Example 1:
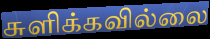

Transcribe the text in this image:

சுளிக்கவில்லை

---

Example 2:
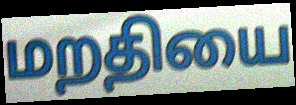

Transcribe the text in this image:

மறதியை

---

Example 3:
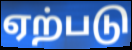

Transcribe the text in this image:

ஏற்படு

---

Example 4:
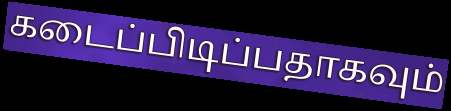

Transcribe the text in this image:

கடைப்பிடிப்பதாகவும்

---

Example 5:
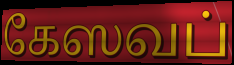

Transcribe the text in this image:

கேஸவப்